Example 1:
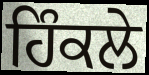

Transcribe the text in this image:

ਹਿੰਕਲੇ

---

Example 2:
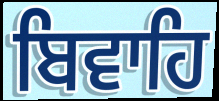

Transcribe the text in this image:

ਬਿਵਾਹਿ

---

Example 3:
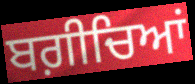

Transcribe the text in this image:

ਬਗ਼ੀਚਿਆਂ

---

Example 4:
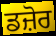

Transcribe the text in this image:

ਡਜ਼ੋਰ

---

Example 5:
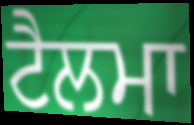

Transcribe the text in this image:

ਟੈਲਮਾ